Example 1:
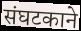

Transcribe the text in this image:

संघटकाने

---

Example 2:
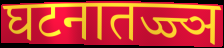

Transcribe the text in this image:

घटनातज्ज्ञ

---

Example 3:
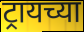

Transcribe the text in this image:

ट्रायच्या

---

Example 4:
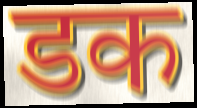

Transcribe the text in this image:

डक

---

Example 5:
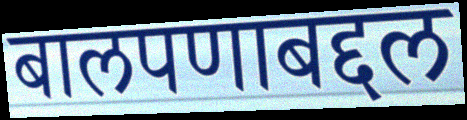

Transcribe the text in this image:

बालपणाबद्दल